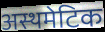
अस्थमेटिक